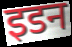
इडन